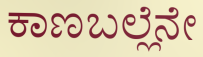
ಕಾಣಬಲ್ಲೆನೇ